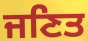
ਜਣਿਤ